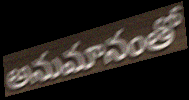
అనుమానంతో